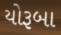
યોરૂબા